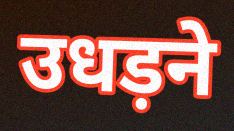
उधड़ने